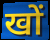
खों